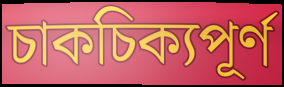
চাকচিক্যপূর্ণ